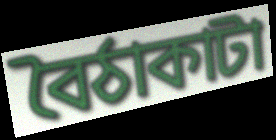
বৈঠাকাটা